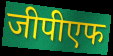
जीपीएफ